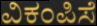
ವಿಕಂಪಿಸೆ